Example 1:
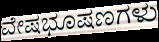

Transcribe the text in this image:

ವೇಷಭೂಷಣಗಳು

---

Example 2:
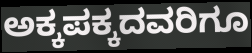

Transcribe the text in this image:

ಅಕ್ಕಪಕ್ಕದವರಿಗೂ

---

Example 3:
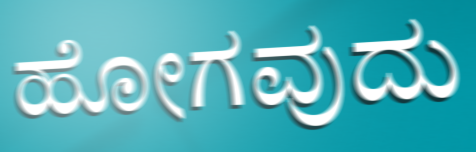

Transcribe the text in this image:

ಹೋಗವುದು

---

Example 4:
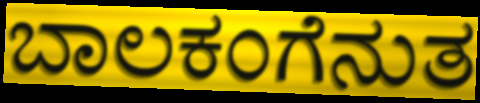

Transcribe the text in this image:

ಬಾಲಕಂಗೆನುತ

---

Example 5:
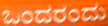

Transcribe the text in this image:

ಒಂದರಂದು